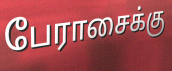
பேராசைக்கு